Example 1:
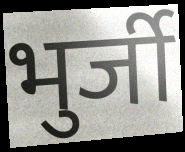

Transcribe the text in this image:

भुर्जी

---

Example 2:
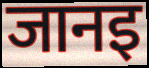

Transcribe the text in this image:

जानइ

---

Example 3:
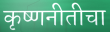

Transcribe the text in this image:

कृष्णनीतीचा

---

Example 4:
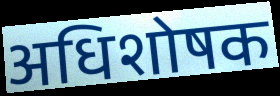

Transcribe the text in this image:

अधिशोषक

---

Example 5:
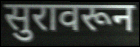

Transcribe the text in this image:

सुरावरून